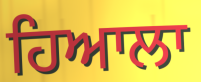
ਹਿਆਲਾ